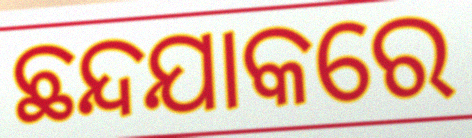
ଛନ୍ଦଯାକରେ